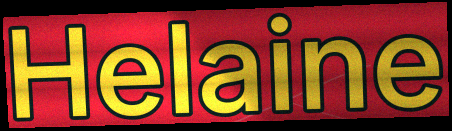
Helaine